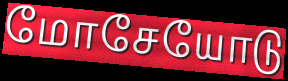
மோசேயோடு